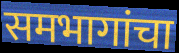
समभागांचा